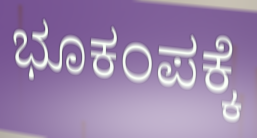
ಭೂಕಂಪಕ್ಕೆ